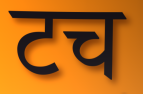
टच